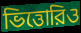
ভিত্তোরিও